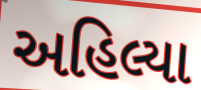
અહિલ્યા